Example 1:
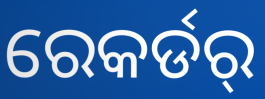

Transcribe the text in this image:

ରେକର୍ଡର୍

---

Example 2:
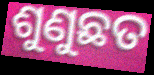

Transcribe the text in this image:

ଶୁଣୁଛତ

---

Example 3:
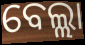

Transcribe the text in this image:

ବେଲ୍ଲା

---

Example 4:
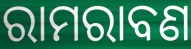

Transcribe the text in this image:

ରାମରାବଣ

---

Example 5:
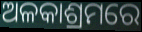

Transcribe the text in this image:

ଅଳକାଶ୍ରମରେ